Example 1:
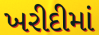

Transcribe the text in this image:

ખરીદીમાં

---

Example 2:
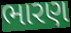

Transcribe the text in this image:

ભારણ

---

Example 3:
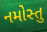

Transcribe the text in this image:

નમોસ્તુ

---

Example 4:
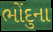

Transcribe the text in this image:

ભોંદુના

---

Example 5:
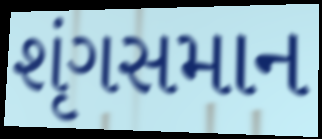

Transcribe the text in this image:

શૃંગસમાન